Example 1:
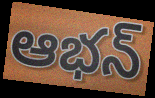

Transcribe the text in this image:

ఆభన్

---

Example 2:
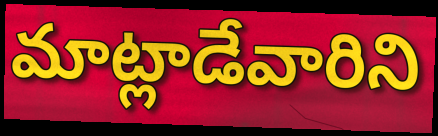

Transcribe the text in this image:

మాట్లాడేవారిని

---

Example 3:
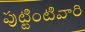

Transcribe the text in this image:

పుట్టింటివారి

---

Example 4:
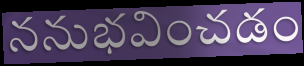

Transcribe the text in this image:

ననుభవించడం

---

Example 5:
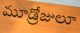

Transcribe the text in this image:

మూడ్రోజులూ